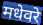
मधेवरे